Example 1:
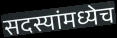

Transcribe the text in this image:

सदस्यांमध्येच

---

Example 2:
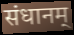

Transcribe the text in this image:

संधानम्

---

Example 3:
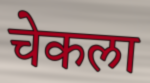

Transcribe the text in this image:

चेकला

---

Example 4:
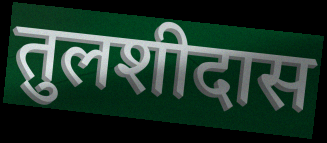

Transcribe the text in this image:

तुलशीदास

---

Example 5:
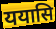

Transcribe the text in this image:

ययासि